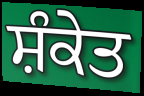
ਸ਼ੰਕੇਤ